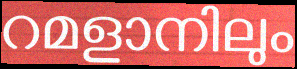
റമളാനിലും